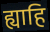
ह्याहि